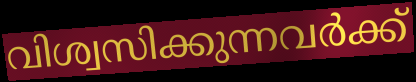
വിശ്വസിക്കുന്നവർക്ക്